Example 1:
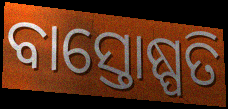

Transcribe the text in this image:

ବାସ୍ତୋଷ୍ପତି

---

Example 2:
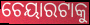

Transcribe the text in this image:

ଚେୟାରଟାକୁ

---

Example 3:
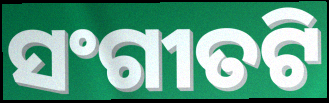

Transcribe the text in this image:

ସଂଗୀତଟି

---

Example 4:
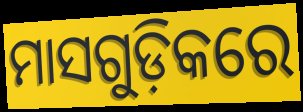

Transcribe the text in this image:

ମାସଗୁଡ଼ିକରେ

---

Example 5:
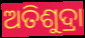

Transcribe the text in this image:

ଅତିଶୁଦ୍ରା